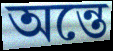
অন্তে